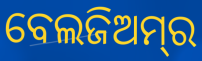
ବେଲଜିଅମ୍‌ର